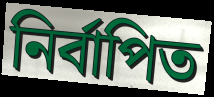
নিৰ্বাপিত